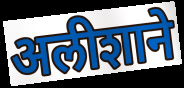
अलीशाने